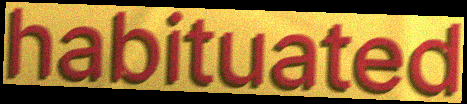
habituated